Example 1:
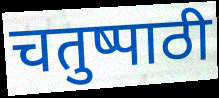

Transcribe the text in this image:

चतुष्पाठी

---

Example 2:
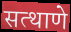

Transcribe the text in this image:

सत्थाणे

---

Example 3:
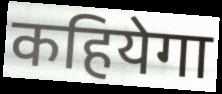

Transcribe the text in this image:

कहियेगा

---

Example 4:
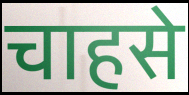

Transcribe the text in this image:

चाहसे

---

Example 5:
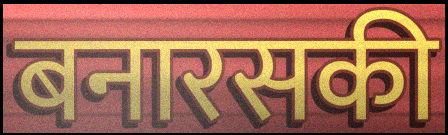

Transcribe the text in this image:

बनारसकी